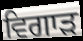
ਵਿਗਾਡ਼